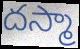
దస్మా